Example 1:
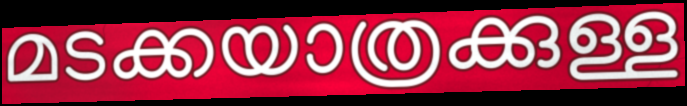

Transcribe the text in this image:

മടക്കയാത്രക്കുള്ള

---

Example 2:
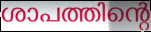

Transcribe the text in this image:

ശാപത്തിന്റെ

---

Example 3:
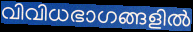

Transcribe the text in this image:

വിവിധഭാഗങ്ങളിൽ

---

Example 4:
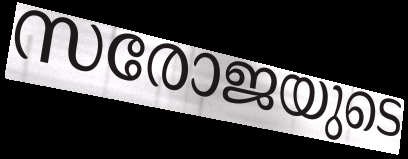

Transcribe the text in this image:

സരോജയുടെ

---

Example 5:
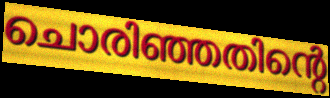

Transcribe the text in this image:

ചൊരിഞ്ഞതിന്റെ